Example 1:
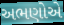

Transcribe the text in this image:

અભણોએ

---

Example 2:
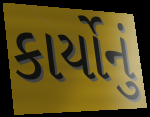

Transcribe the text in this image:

કાર્યોનું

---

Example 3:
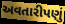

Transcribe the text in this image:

અવતારીપણું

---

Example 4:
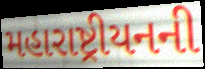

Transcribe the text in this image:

મહારાષ્ટ્રીયનની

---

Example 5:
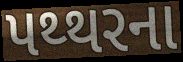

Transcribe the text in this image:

પથ્થરના